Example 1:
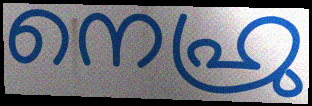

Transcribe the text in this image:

നെഹ്രു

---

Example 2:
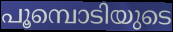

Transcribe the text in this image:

പൂമ്പൊടിയുടെ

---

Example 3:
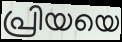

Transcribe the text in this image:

പ്രിയയെ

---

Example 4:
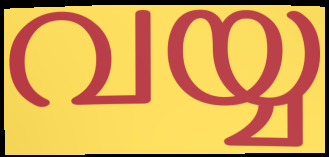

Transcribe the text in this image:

വയ്യ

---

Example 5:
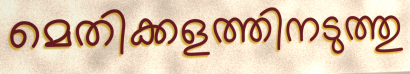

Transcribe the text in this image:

മെതിക്കളത്തിനടുത്തു